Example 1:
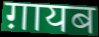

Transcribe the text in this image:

ग़ायब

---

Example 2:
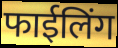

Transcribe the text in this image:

फाईलिंग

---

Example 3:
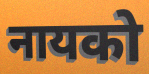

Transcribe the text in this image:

नायको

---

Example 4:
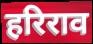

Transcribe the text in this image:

हरिराव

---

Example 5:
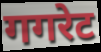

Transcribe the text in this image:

गगरेट